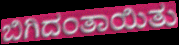
ಬಿಗಿದಂತಾಯಿತು